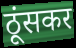
ठूंसकर